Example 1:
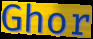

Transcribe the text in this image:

Ghor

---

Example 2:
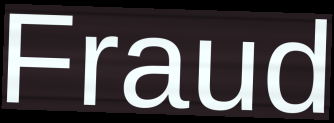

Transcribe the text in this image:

Fraud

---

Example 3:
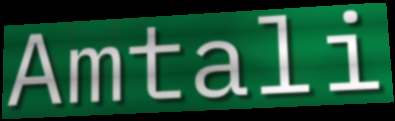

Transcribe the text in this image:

Amtali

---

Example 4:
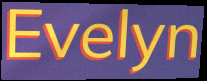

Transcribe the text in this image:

Evelyn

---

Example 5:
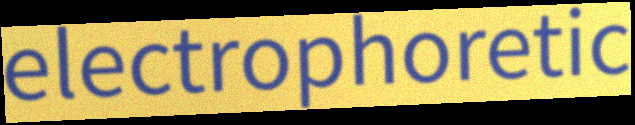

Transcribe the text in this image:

electrophoretic